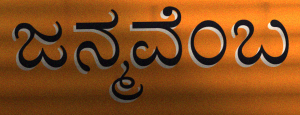
ಜನ್ಮವೆಂಬ